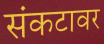
संकटावर